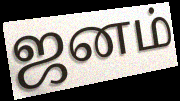
ஜனம்